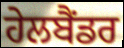
ਹੇਲਬੈਂਡਰ